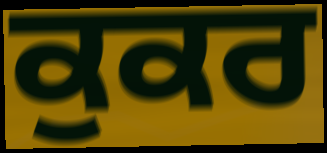
ਕੁਕਰ